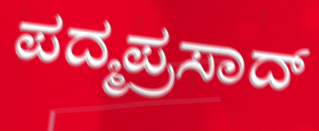
ಪದ್ಮಪ್ರಸಾದ್